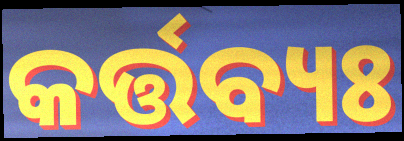
କର୍ତ୍ତବ୍ୟଃ